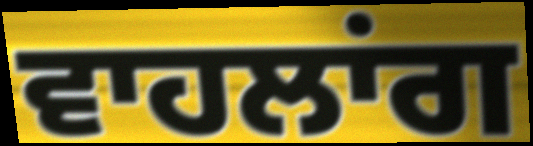
ਵਾਹਲਾਂਗ